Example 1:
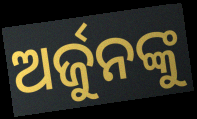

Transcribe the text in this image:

ଅର୍ଜୁନଙ୍କୁ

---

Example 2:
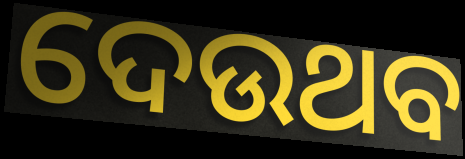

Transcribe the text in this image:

ଦେଉଥବ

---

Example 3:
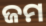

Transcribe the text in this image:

ଜମ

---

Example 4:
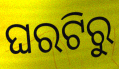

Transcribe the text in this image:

ଘରଟିରୁ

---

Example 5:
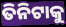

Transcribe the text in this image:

ତିନିଟାକୁ